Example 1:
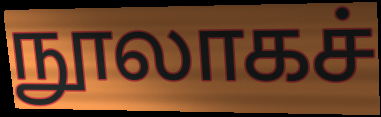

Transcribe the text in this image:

நூலாகச்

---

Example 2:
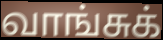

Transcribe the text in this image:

வாங்சுக்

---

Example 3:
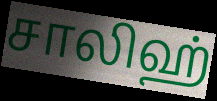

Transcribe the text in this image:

சாலிஹ்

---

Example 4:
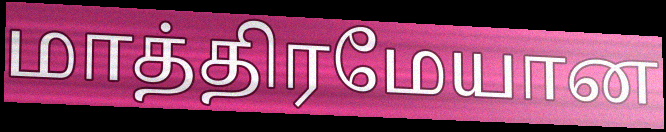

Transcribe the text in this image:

மாத்திரமேயான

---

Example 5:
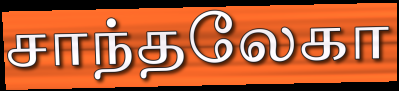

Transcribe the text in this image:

சாந்தலேகா